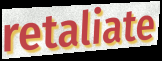
retaliate